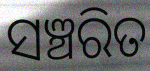
ସଞ୍ଚରିତ